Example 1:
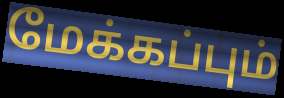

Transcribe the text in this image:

மேக்கப்பும்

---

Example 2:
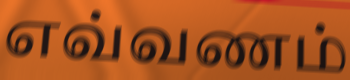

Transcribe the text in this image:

எவ்வணம்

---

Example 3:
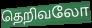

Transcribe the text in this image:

தெறிவலோ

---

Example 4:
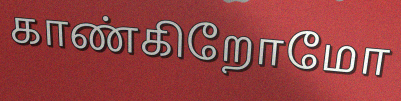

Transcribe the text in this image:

காண்கிறோமோ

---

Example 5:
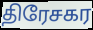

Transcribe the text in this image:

திரேசகர